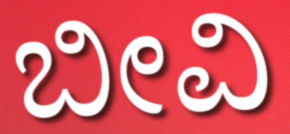
ಬೀವಿ